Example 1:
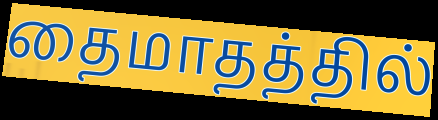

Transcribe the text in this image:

தைமாதத்தில்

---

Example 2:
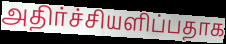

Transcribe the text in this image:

அதிர்ச்சியளிப்பதாக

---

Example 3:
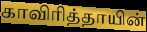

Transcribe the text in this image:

காவிரித்தாயின்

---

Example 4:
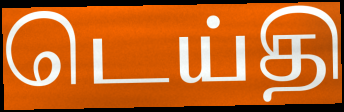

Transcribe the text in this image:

டெய்தி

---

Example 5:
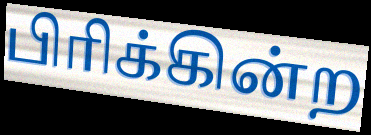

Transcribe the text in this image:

பிரிக்கின்ற